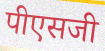
पीएसजी